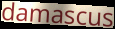
damascus